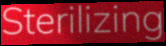
Sterilizing